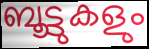
ബൂട്ടുകളും